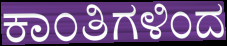
ಕಾಂತಿಗಳಿಂದ